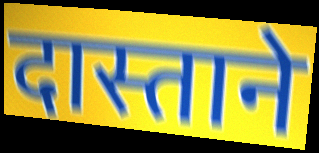
दास्ताने